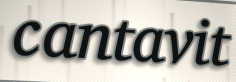
cantavit